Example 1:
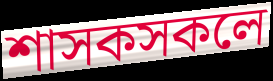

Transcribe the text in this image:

শাসকসকলে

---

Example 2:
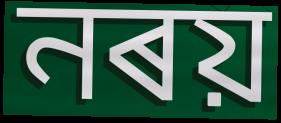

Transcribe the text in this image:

নৰয়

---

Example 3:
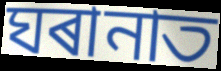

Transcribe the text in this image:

ঘৰানাত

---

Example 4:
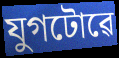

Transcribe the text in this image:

যুগটোৱে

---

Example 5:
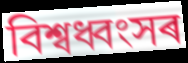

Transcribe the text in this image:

বিশ্বধ্বংসৰ